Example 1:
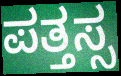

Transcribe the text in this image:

ಪತ್ತಸ್ಸ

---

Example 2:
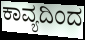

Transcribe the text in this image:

ಕಾವ್ಯದಿಂದ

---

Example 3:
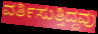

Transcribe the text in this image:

ವರ್ತಿಸುತ್ತಿದ್ದವು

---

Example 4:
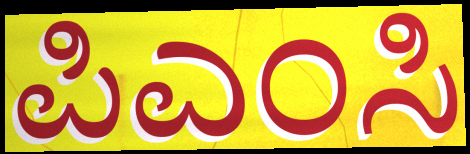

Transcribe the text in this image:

ಪಿಎಂಸಿ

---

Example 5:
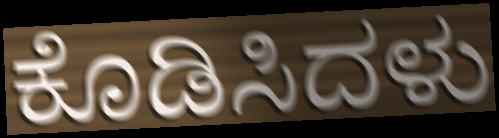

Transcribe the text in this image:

ಕೊಡಿಸಿದಳು